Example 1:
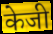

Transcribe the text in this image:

केजी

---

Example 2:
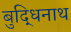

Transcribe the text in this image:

बुद्धिनाथ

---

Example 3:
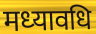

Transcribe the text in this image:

मध्‍यावधि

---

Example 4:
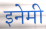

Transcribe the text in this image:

इनेमी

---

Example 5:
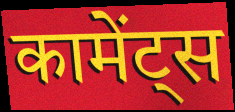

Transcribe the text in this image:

कामेंट्स